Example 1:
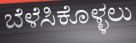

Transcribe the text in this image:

ಬೆಳೆಸಿಕೊಳ್ಳಲು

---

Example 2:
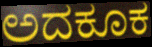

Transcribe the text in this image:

ಅದಕೂಕ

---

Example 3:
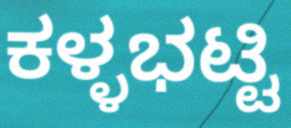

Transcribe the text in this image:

ಕಳ್ಳಭಟ್ಟಿ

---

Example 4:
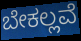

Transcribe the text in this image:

ಬೇಕಲ್ಲವೆ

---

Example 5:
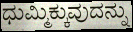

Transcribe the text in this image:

ಧುಮ್ಮಿಕ್ಕುವುದನ್ನು